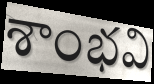
శాంభవి